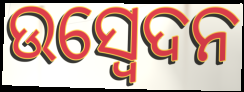
ଉସ୍ୱେଦନ